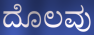
ದೊಲವು